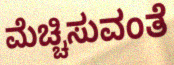
ಮೆಚ್ಚಿಸುವಂತೆ